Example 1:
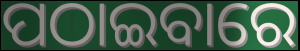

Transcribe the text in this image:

ପଠାଇବାରେ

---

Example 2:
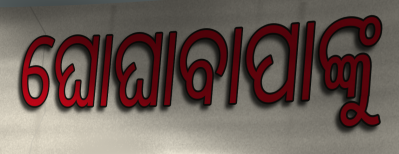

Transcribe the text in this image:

ଘୋଘାବାପାଙ୍କୁ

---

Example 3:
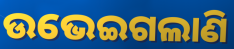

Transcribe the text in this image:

ଉଭେଇଗଲାଣି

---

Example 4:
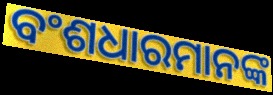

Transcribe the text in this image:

ବଂଶଧାରମାନଙ୍କ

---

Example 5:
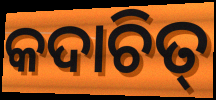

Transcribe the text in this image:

କଦାଚିତ୍